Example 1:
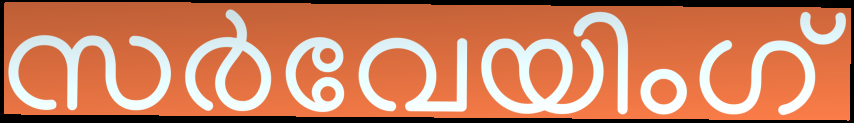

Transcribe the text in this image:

സർവേയിംഗ്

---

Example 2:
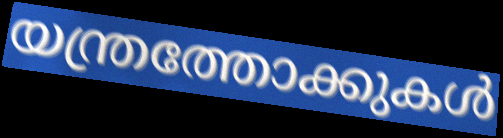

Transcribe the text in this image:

യന്ത്രത്തോക്കുകൾ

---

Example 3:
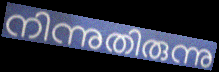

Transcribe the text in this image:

നിന്നുതിരുന്നു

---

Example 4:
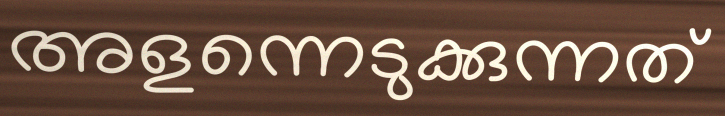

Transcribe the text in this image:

അളന്നെടുക്കുന്നത്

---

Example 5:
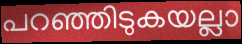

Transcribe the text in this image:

പറഞ്ഞിടുകയല്ലാ